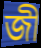
জী